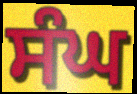
ਸੰਘ